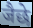
जैछे